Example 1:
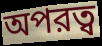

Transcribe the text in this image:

অপরত্ব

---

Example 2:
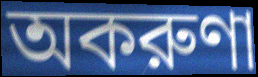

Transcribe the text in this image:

অকরুণা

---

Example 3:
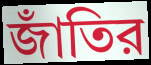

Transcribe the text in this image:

জাঁতির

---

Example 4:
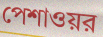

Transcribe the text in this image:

পেশাওয়র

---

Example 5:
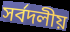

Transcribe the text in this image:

সর্বদলীয়